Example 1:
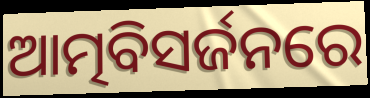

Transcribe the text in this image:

ଆତ୍ମବିସର୍ଜନରେ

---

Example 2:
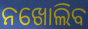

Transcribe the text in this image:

ନଖୋଲିବ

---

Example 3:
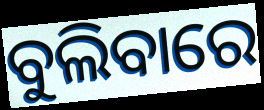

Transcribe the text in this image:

ବୁଲିବାରେ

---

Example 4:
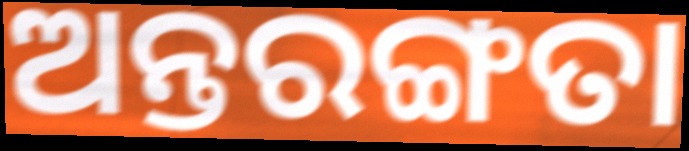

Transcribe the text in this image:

ଅନ୍ତରଙ୍ଗତା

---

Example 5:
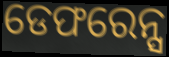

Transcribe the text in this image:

ଡେଫରେନ୍ସ